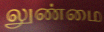
லுண்மை